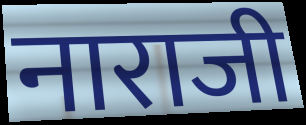
नाराजी